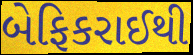
બેફિકરાઈથી